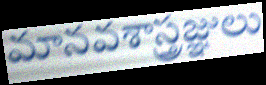
మానవశాస్త్రజ్ఞులు